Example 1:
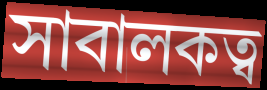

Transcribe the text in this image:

সাবালকত্ব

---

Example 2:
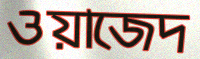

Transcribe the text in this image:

ওয়াজেদ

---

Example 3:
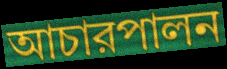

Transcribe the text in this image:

আচারপালন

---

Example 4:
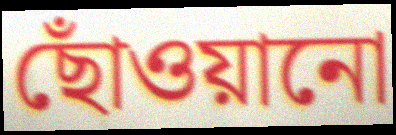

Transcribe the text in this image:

ছোঁওয়ানো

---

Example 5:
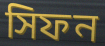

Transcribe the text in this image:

সিফন